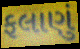
ફલાણું